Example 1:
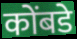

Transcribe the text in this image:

कोंबडे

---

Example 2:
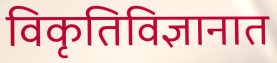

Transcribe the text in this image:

विकृतिविज्ञानात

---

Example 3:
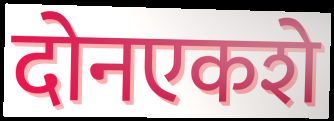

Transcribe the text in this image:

दोनएकशे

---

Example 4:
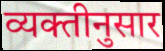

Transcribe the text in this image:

व्यक्तीनुसार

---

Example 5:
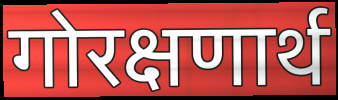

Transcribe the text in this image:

गोरक्षणार्थ